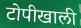
टोपीखाली